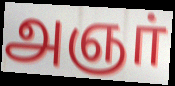
அஞர்